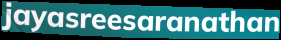
jayasreesaranathan